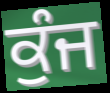
ਕੁੰਜ